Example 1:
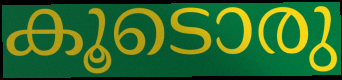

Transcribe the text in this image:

കൂടൊരു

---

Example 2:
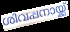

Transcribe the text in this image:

ശിവപ്പനായ്ക്ക്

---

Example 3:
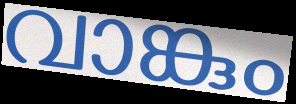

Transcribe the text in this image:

വാങ്കും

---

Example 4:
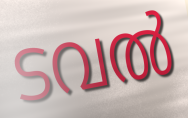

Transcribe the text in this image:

ടവൽ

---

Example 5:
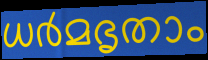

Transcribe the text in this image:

ധർമഭൃതാം